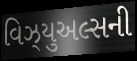
વિઝ્યુઅલ્સની